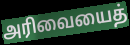
அரிவையைத்